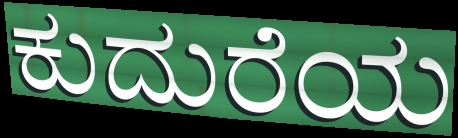
ಕುದುರೆಯ